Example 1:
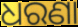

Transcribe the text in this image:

ଧରଣା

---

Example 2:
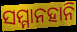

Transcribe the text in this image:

ସମ୍ମାନହାନି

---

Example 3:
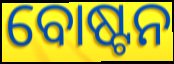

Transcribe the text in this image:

ବୋଷ୍ଟନ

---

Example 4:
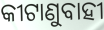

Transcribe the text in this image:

କୀଟାଣୁବାହୀ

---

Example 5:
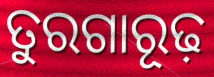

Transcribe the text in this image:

ତୁରଗାରୂଢ଼